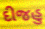
દીજહુ